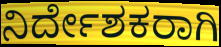
ನಿರ್ದೇಶಕರಾಗಿ